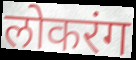
लोकरंग